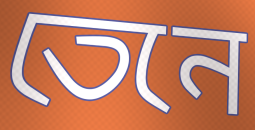
তেনে